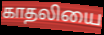
காதலியை